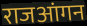
राजआंगन